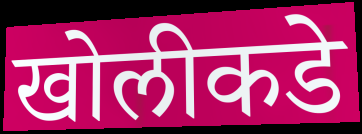
खोलीकडे